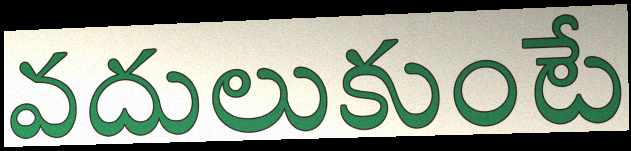
వదులుకుంటే